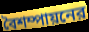
বৈশম্পায়নের